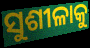
ସୁଶୀଳାକୁ